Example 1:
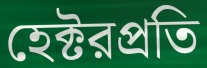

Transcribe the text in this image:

হেক্টরপ্রতি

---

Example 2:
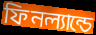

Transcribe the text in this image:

ফিনল্যান্ডে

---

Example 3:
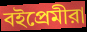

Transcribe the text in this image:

বইপ্রেমীরা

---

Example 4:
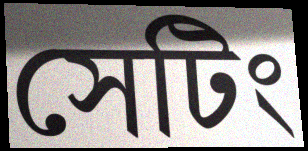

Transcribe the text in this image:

সেটিং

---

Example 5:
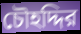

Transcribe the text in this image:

চৌহদ্দির